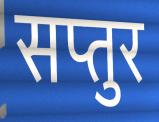
सप्तुर